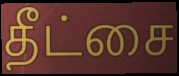
தீட்சை